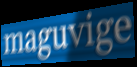
maguvige